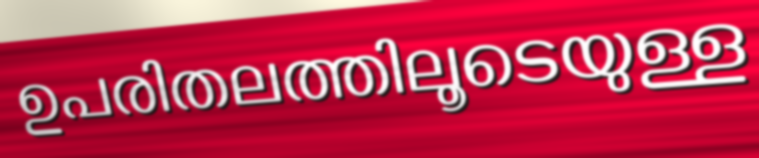
ഉപരിതലത്തിലൂടെയുള്ള